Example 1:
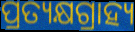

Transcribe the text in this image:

ପ୍ରତ୍ୟକ୍ଷଗ୍ରାହ୍ୟ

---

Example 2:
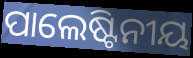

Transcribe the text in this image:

ପାଲେଷ୍ଟିନୀୟ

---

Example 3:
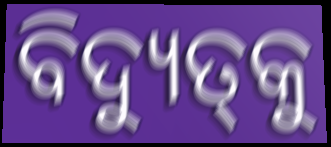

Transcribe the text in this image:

ବିଦ୍ୟୁତ୍‌କୁ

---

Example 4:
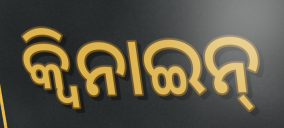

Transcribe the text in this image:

କ୍ୱିନାଇନ୍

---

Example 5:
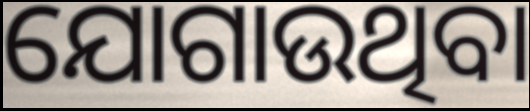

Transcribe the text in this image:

ଯୋଗାଉଥିବା